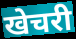
खेचरी